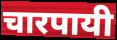
चारपायी